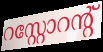
റസ്റ്റോറന്റ്